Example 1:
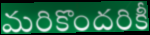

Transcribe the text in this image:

మరికొందరికీ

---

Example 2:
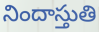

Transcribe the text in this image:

నిందాస్తుతి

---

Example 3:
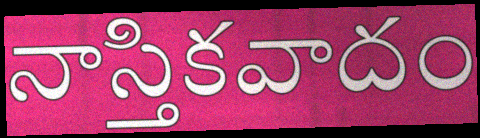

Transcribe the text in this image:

నాస్తికవాదం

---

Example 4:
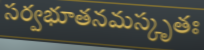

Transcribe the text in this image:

సర్వభూతనమస్కృతః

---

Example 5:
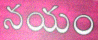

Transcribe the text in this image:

నయం